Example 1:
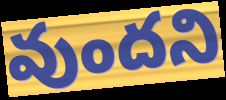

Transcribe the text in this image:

వుందని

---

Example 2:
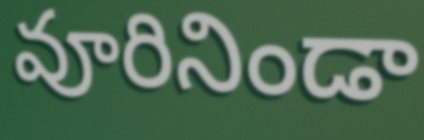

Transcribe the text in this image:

వూరినిండా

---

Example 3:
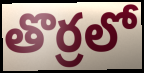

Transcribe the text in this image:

తొర్రలో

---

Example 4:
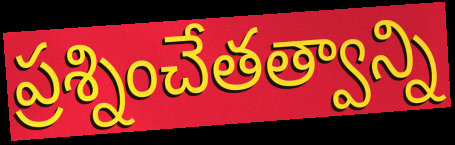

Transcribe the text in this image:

ప్రశ్నించేతత్వాన్ని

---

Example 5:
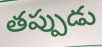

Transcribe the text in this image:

తప్పుడు